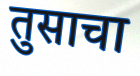
तुसाचा